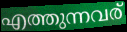
എത്തുന്നവര്